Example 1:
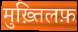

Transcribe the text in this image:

मुख़्तिलफ़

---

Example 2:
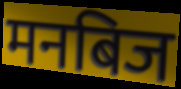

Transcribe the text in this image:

मनबिज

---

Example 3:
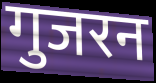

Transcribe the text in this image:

गुजरन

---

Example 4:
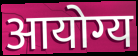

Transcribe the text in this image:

आयोग्य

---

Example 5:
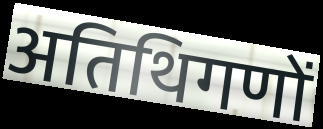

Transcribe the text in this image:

अतिथिगणों